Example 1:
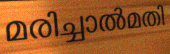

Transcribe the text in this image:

മരിച്ചാൽമതി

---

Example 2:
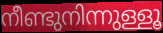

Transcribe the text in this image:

നീണ്ടുനിന്നുള്ളൂ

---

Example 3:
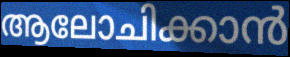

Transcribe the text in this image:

ആലോചിക്കാൻ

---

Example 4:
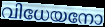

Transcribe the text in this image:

വിധേയനോ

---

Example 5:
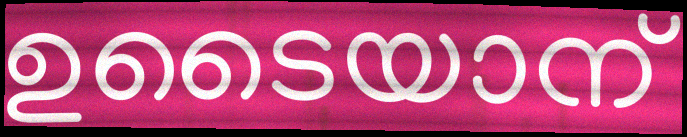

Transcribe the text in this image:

ഉടൈയാന്